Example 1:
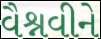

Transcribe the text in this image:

વૈશ્નવીને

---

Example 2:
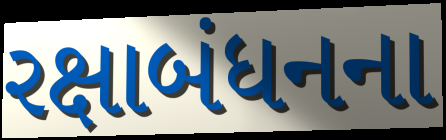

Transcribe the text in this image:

રક્ષાબંધનના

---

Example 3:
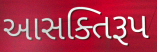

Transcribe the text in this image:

આસક્તિરૂપ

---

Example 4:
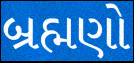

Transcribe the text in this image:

બ્રહ્મણો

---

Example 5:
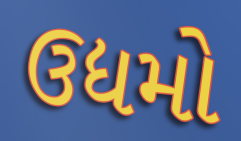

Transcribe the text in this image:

ઉદ્યમો